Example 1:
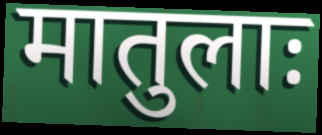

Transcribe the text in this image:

मातुलाः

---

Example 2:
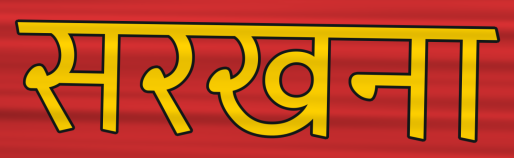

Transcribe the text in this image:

सरखना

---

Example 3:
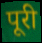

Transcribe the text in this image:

पूरी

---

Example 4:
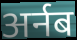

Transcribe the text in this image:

अर्नब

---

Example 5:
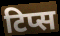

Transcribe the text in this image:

टिप्स